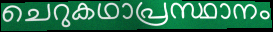
ചെറുകഥാപ്രസ്ഥാനം